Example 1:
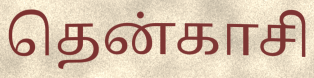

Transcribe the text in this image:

தென்காசி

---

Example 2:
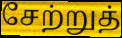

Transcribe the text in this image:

சேற்றுத்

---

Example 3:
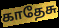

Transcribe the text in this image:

காதேசு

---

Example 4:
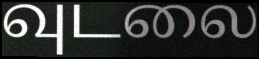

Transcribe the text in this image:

வுடலை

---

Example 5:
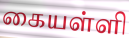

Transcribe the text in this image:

கையள்ளி